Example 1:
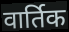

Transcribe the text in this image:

वार्तिक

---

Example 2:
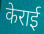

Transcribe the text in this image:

केराई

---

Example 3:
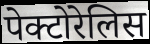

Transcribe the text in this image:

पेक्टोरेलिस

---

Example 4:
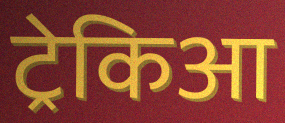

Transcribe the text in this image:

ट्रेकिआ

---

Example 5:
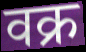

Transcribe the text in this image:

वक्र